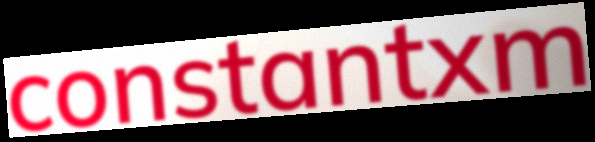
constantxm